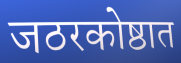
जठरकोष्ठात